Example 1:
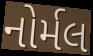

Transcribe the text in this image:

નોર્મલ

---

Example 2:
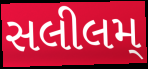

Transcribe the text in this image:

સલીલમ્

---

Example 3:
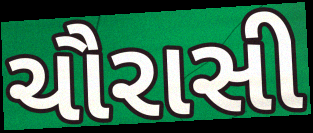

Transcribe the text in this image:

ચૌરાસી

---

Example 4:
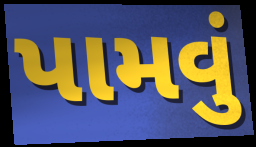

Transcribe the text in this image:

પામવું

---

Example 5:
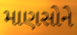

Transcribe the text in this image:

માણસોને